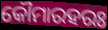
କୌମାରହରଃ